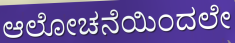
ಆಲೋಚನೆಯಿಂದಲೇ